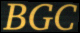
BGC